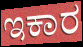
ಇಕಾರ